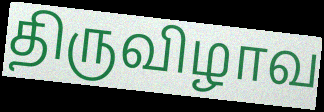
திருவிழாவ